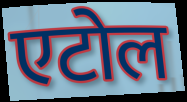
एटोल